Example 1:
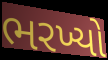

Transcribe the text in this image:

ભરખ્યો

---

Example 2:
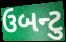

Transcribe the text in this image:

ઉબન્ટુ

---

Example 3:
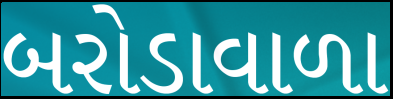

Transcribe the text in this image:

બરોડાવાળા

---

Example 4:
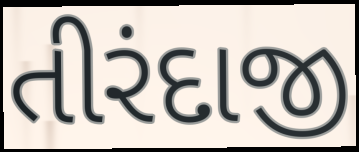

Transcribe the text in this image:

તીરંદાજી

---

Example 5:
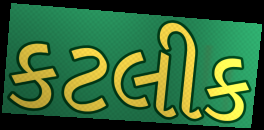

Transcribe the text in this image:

કટલીક